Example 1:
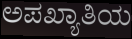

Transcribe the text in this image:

ಅಪಖ್ಯಾತಿಯ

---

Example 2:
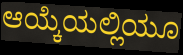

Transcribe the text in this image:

ಆಯ್ಕೆಯಲ್ಲಿಯೂ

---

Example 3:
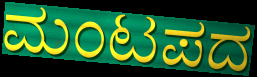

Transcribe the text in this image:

ಮಂಟಪದ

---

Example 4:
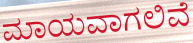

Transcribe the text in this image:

ಮಾಯವಾಗಲಿವೆ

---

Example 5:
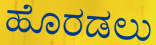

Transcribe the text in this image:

ಹೊರಡಲು